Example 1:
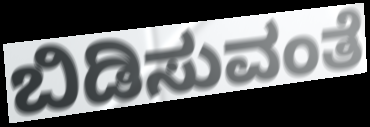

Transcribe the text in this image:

ಬಿಡಿಸುವಂತೆ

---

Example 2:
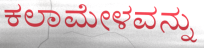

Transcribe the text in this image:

ಕಲಾಮೇಳವನ್ನು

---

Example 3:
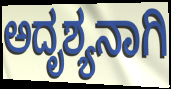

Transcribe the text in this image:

ಅದೃಶ್ಯನಾಗಿ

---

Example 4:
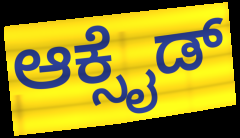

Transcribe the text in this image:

ಆಕ್ಸೈಡ್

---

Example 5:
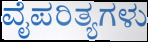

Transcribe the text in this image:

ವೈಪರಿತ್ಯಗಳು